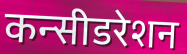
कन्सीडरेशन